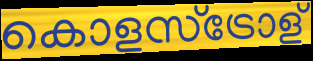
കൊളസ്ട്രോള്